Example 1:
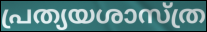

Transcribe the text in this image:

പ്രത്യയശാസ്ത്ര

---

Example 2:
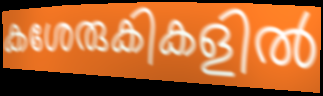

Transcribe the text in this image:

കശേരുകികളിൽ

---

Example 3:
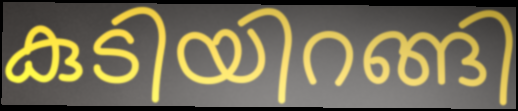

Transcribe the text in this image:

കുടിയിറങ്ങി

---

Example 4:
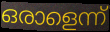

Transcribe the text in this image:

ഒരാളെന്ന്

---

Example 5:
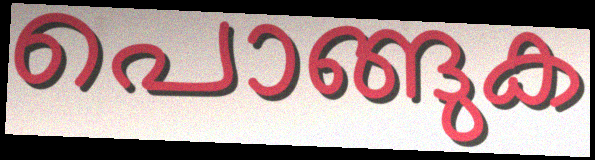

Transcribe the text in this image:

പൊങ്ങുക